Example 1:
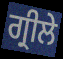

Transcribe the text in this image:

ਗ੍ਰੀਲੇ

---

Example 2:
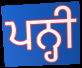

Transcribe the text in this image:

ਪਨ੍ਹੀ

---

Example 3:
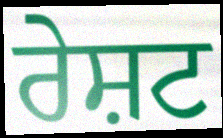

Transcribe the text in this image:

ਰੇਸ਼ਟ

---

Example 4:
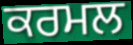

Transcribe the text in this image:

ਕਰਮਲ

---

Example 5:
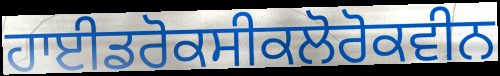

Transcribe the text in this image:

ਹਾਈਡਰੋਕਸੀਕਲੋਰੋਕਵੀਨ